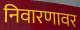
निवारणावर